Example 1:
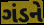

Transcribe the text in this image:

ગંડને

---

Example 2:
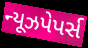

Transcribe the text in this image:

ન્યૂઝપેપર્સ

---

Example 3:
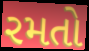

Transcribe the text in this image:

રમતો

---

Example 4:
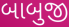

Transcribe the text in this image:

બાબુજી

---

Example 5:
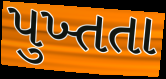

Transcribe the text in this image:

પુખ્તતા